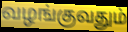
வழங்குவதும்